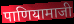
पाणियामाजी